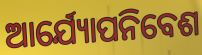
ଆର୍ଯ୍ୟୋପନିବେଶ